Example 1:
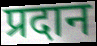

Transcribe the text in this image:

प्रदान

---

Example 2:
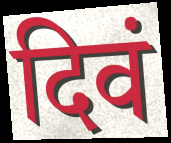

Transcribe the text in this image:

दिवं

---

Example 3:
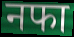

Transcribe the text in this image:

नफा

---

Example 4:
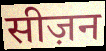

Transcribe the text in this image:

सीज़न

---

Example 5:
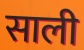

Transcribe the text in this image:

साली